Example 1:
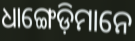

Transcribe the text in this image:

ଧାଙ୍ଗେଡ଼ିମାନେ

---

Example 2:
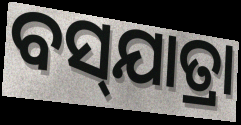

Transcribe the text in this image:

ବସ୍‌ଯାତ୍ରା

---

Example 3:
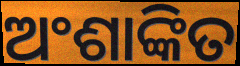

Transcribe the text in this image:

ଅଂଶାଙ୍କିତ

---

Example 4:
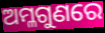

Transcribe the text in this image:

ଅମ୍ଳଗୁଣରେ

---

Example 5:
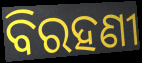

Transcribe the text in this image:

ବିରହଣୀ